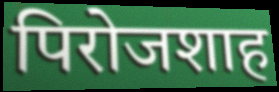
पिरोजशाह